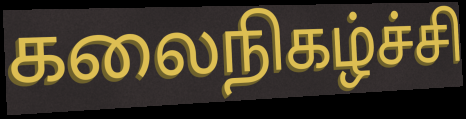
கலைநிகழ்ச்சி